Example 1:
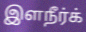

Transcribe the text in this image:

இளநீர்க்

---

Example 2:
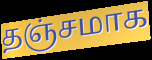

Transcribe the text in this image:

தஞ்சமாக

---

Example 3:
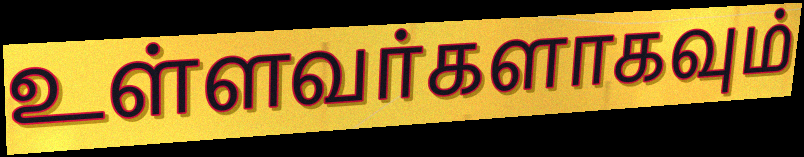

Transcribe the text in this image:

உள்ளவர்களாகவும்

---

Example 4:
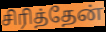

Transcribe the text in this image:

சிரித்தேன்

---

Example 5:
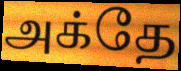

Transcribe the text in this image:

அக்தே